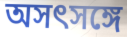
অসৎসঙ্গে